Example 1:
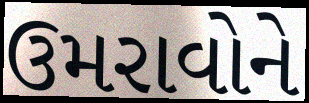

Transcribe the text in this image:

ઉમરાવોને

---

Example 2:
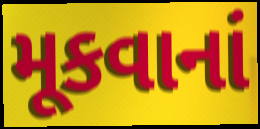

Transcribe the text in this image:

મૂકવાનાં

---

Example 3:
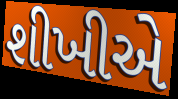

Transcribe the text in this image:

શીખીએ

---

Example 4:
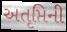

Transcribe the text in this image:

અતૃપ્તિની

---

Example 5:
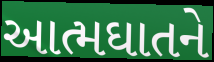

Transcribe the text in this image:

આત્મઘાતને